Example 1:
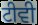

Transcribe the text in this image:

ਟੀਵੀ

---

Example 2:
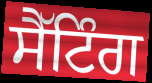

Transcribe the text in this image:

ਸੈੱਟਿੰਗ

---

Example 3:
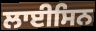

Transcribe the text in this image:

ਲਾਈਸਿਨ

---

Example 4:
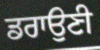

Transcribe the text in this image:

ਡਰਾਉਣੀ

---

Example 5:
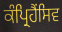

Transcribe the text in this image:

ਕੰਪ੍ਰਿਹੈਂਸਿਵ